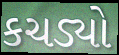
કચડ્યો